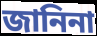
জানিনা